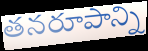
తనరూపాన్ని